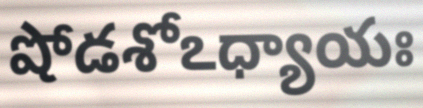
షోడశోఽధ్యాయః